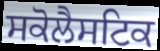
ਸਕੋਲੈਸਟਿਕ